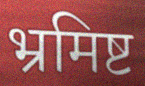
भ्रमिष्ट